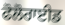
ਫੋਲੋਰਾਈਡ